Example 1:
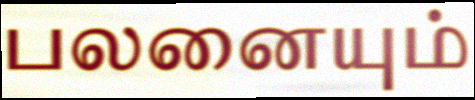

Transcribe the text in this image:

பலனையும்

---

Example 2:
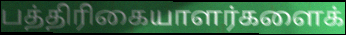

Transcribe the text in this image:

பத்திரிகையாளர்களைக்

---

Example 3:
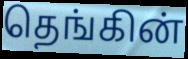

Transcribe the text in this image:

தெங்கின்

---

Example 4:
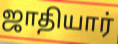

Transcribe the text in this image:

ஜாதியார்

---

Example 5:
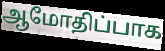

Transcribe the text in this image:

ஆமோதிப்பாக